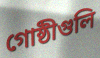
গোষ্ঠীগুলি